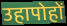
उहापोहों